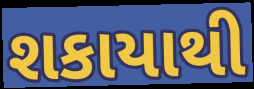
શકાયાથી